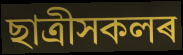
ছাত্ৰীসকলৰ